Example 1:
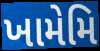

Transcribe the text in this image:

ખામેમિ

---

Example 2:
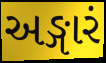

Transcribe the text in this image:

અઙ્ગારં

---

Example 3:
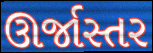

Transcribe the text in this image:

ઊર્જાસ્તર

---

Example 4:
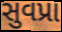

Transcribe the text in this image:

સુવપ્રા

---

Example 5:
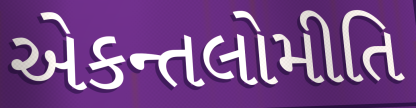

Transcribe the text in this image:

એકન્તલોમીતિ